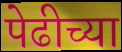
पेढीच्या